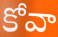
కోవా